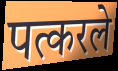
पत्करले